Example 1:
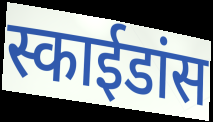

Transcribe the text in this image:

स्काईडांस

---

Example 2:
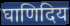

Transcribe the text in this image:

घाणिदिय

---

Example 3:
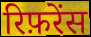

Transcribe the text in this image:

रिफ़रेंस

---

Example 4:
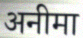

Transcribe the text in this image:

अनीमा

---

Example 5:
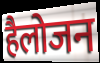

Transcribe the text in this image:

हैलोजन